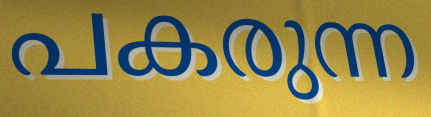
പകരുന്ന